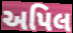
અપિલ